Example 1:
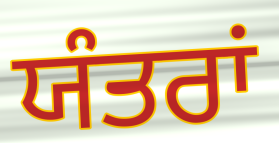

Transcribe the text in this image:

ਯੰਤਰਾਂ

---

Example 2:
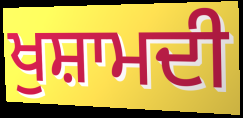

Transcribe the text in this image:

ਖੁਸ਼ਾਮਦੀ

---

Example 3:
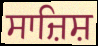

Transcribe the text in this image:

ਸਾਜ਼ਿਸ਼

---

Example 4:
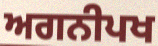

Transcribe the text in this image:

ਅਗਨੀਪਖ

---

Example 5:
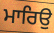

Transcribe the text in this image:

ਮਾਰਿਉ